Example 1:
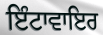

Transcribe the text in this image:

ਇੰਟਾਵਾਇਰ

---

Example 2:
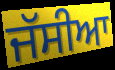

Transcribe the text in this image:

ਜੱਸੀਆ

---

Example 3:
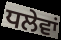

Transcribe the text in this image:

ਧਲੇਵਾਂ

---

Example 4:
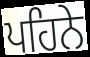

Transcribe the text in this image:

ਪਹਿਨੇ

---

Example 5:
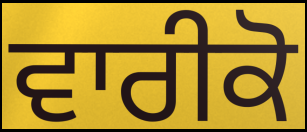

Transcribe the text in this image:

ਵਾਰੀਕੋ